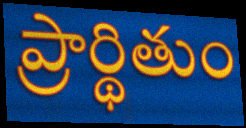
ప్రార్థితుం